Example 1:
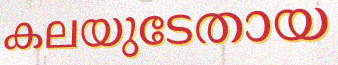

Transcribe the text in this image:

കലയുടേതായ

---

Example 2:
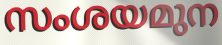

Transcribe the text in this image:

സംശയമുന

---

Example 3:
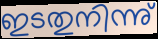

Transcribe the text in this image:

ഇടതുനിന്നു്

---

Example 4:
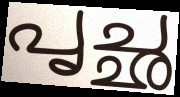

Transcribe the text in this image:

പൃച്ഛ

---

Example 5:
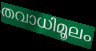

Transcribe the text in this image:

തവാധിമൂലം